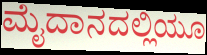
ಮೈದಾನದಲ್ಲಿಯೂ